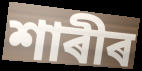
শাৰীৰ